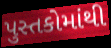
પુસ્તકોમાંથી